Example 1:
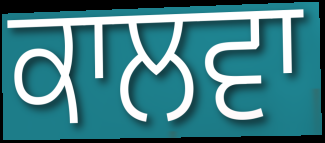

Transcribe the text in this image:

ਕਾਲਵਾ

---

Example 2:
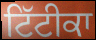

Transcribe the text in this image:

ਟਿੱਟੀਕਾ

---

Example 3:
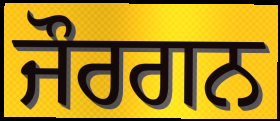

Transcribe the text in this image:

ਜੌਰਗਨ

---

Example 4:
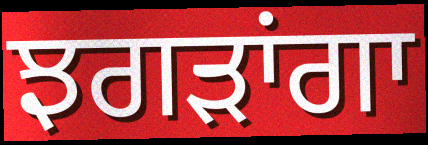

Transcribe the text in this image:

ਝਗੜਾਂਗਾ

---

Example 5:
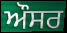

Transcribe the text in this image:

ਔਸਰ